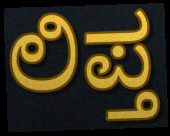
ಲಿಪ್ತ